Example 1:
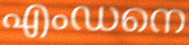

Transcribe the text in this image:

എംഡനെ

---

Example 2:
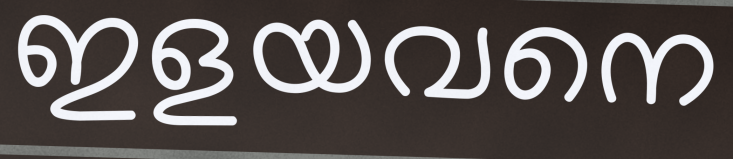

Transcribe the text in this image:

ഇളയവനെ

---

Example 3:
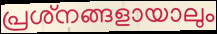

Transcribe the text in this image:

പ്രശ്‌നങ്ങളായാലും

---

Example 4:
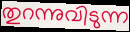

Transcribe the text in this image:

തുറന്നുവിടുന്ന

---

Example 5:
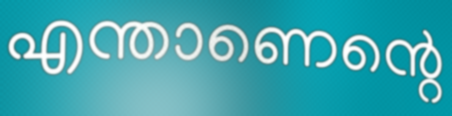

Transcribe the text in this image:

എന്താണെന്റെ